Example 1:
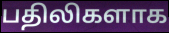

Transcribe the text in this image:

பதிலிகளாக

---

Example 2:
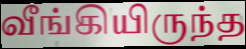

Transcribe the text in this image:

வீங்கியிருந்த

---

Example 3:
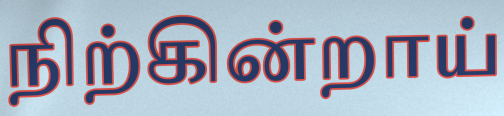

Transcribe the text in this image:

நிற்கின்றாய்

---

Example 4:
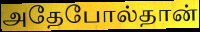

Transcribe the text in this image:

அதேபோல்தான்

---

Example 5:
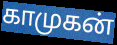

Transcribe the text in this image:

காமுகன்